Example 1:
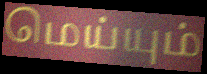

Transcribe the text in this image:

மெய்யும்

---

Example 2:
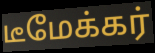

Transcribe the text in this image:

டீமேக்கர்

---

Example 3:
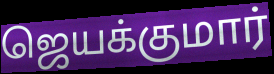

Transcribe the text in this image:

ஜெயக்குமார்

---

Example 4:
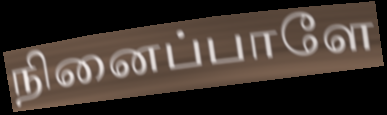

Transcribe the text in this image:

நினைப்பாளே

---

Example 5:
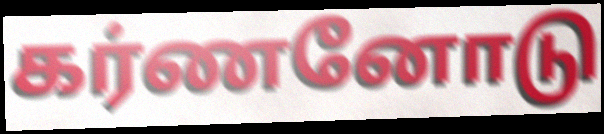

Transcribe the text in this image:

கர்ணனோடு